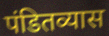
पंडितव्यास